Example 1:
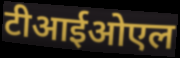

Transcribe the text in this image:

टीआईओएल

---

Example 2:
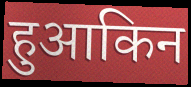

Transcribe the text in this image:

हुआकिन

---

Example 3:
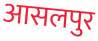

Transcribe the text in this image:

आसलपुर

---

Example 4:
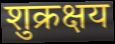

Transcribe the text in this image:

शुक्रक्षय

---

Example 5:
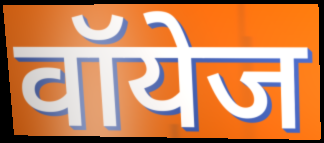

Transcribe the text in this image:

वॉयेज